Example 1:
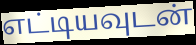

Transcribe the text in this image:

எட்டியவுடன்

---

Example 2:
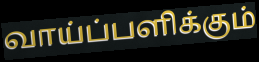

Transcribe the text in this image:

வாய்ப்பளிக்கும்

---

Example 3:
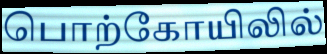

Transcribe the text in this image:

பொற்கோயிலில்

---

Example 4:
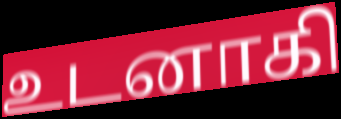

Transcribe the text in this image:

உடனாகி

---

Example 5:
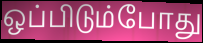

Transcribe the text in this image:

ஒப்பிடும்போது